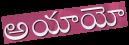
అయాయో